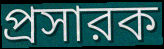
প্রসারক